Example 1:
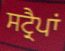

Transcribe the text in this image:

ਸਟ੍ਰੈਪਾਂ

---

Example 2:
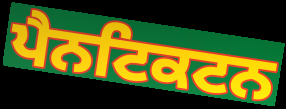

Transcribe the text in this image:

ਪੈਨਟਿਕਟਨ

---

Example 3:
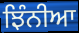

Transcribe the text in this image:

ਝਿੰਨੀਆ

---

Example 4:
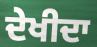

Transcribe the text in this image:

ਦੇਖੀਦਾ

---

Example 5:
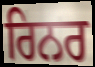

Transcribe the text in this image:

ਰਿਨਰ